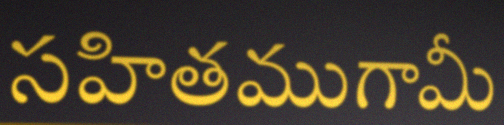
సహితముగామీ